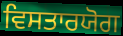
ਵਿਸਤਾਰਯੋਗ